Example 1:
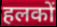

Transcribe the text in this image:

हलकों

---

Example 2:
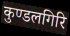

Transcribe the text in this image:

कुण्डलगिरि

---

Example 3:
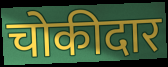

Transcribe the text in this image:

चोकीदार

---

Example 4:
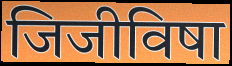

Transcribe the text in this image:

जिजीविषा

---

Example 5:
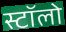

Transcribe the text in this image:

स्टॉलो